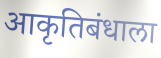
आकृतिबंधाला